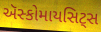
ઍસ્કોમાયસિટ્સ